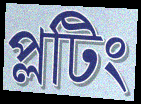
প্লটিং